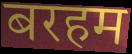
बरहम